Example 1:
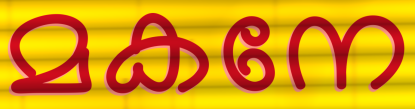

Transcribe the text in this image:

മകനേ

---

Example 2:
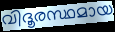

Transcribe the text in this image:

വിദൂരസ്ഥമായ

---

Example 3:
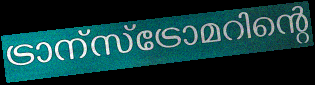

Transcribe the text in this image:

ട്രാന്സ്ട്രോമറിന്റെ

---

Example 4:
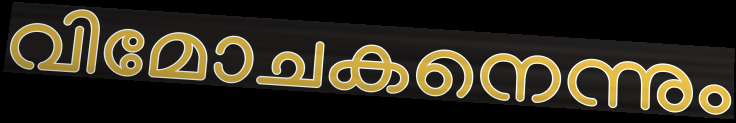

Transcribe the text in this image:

വിമോചകനെന്നും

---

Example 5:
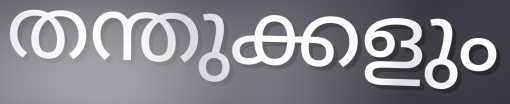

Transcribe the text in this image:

തന്തുക്കളും